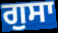
ਗੁਸਾ